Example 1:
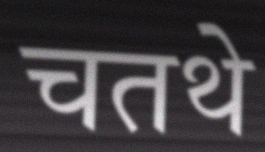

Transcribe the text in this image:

चतथे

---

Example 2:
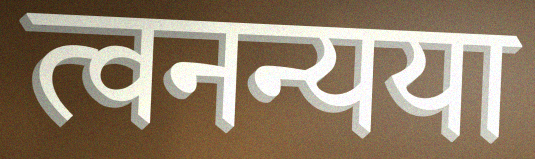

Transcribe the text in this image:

त्वनन्यया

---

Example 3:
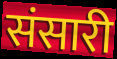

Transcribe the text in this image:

संसारी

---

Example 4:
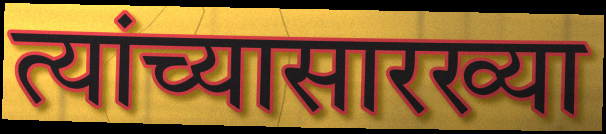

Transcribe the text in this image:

त्यांच्यासारख्या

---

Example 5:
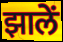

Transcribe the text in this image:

झालें